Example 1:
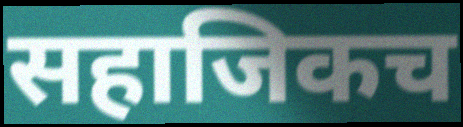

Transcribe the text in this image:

सहाजिकच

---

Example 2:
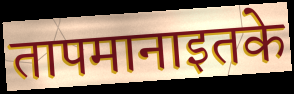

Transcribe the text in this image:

तापमानाइतके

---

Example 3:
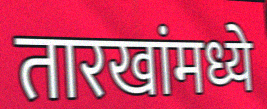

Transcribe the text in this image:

तारखांमध्ये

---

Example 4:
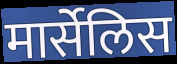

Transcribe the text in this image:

मार्सेलिस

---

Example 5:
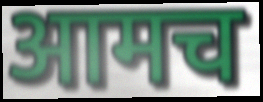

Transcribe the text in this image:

आमच